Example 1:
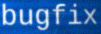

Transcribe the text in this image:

bugfix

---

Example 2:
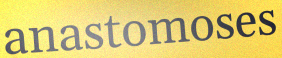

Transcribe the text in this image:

anastomoses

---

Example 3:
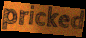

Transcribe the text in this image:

pricked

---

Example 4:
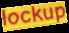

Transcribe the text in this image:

lockup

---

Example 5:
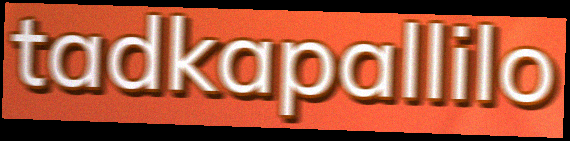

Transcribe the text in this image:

tadkapallilo